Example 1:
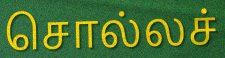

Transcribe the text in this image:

சொல்லச்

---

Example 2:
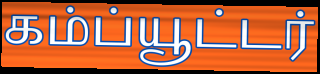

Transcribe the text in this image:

கம்ப்யூட்டர்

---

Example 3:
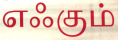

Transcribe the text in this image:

எஃகும்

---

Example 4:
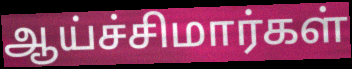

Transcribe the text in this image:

ஆய்ச்சிமார்கள்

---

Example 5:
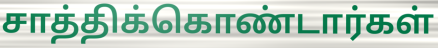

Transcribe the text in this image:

சாத்திக்கொண்டார்கள்